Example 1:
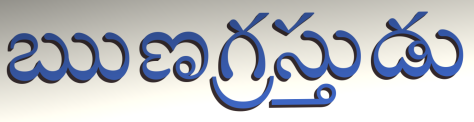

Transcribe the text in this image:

ఋణగ్రస్తుడు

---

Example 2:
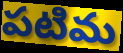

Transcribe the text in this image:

పటిమ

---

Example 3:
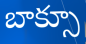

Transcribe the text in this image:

బాక్సూ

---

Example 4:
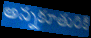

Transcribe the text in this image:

అన్నకూతురికి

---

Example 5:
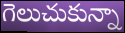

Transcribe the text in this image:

గెలుచుకున్నా